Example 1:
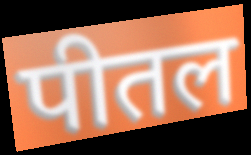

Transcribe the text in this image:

पीतल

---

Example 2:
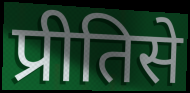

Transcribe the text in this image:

प्रीतिसे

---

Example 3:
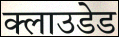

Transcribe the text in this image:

क्लाउडेड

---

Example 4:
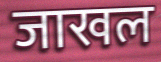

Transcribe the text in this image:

जाखल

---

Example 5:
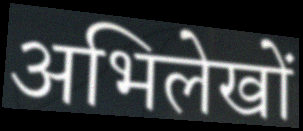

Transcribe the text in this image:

अभिलेखों